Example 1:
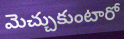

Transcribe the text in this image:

మెచ్చుకుంటారో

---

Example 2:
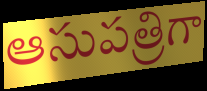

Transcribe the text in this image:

ఆసుపత్రిగా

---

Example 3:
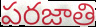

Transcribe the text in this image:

పరజాతి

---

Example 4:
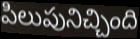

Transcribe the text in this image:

పిలుపునిచ్చింది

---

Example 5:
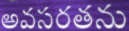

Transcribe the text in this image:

అవసరతను